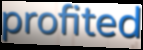
profited